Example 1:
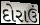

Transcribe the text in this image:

દોરાઉં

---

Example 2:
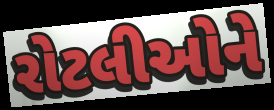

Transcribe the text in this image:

રોટલીઓને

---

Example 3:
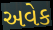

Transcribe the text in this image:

અવેક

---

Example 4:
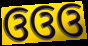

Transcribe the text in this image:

ઉઉઉ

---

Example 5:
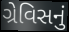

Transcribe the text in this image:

ગ્રેવિસનું